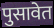
पुसावेत